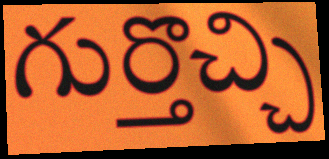
గుర్తొచ్చి